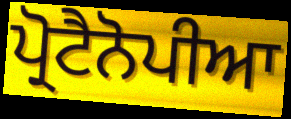
ਪ੍ਰੋਟੈਨੋਪੀਆ